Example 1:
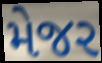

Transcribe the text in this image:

મેજર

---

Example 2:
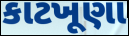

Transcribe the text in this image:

કાટખૂણા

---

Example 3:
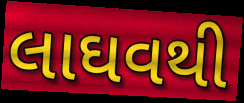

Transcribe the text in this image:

લાઘવથી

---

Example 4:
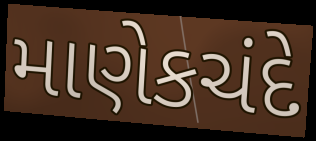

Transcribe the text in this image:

માણેકચંદે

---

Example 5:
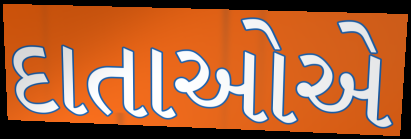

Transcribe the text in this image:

દાતાઓએ